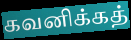
கவனிக்கத்